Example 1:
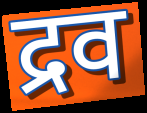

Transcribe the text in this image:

द्रव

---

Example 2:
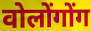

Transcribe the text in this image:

वोलोंगोंग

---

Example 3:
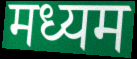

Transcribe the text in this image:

मध्यम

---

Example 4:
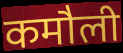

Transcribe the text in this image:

कमौली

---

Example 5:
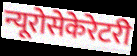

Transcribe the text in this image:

न्यूरोसेकेरेटरी